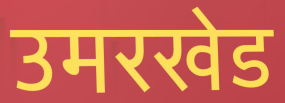
उमरखेड